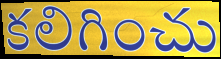
కలిగించు